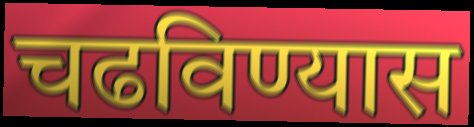
चढविण्यास